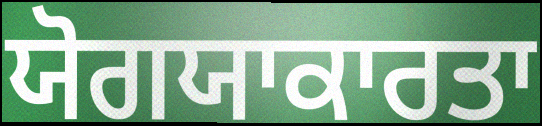
ਯੋਗਯਾਕਾਰਤਾ